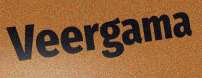
Veergama